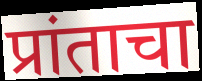
प्रांताचा